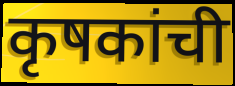
कृषकांची